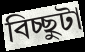
বিচ্ছুটা